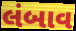
લંબાવ